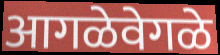
आगळेवेगळे